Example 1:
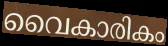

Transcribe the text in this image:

വൈകാരികം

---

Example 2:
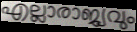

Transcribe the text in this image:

എല്ലാരാജ്യവും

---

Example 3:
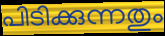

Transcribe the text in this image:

പിടിക്കുന്നതും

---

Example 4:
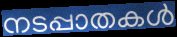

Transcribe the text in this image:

നടപ്പാതകൾ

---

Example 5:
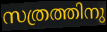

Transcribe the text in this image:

സത്രത്തിനു